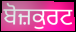
ਬੋਜ਼ਕੁਰਟ